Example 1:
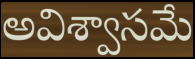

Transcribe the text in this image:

అవిశ్వాసమే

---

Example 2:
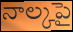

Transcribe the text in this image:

నాల్కపై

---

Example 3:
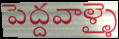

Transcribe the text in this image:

పెద్దవాళ్ళై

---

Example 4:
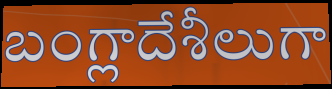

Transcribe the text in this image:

బంగ్లాదేశీలుగా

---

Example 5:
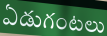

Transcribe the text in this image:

ఏడుగంటలు